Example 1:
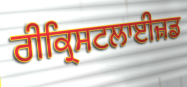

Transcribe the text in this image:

ਰੀਕ੍ਰਿਸਟਲਾਈਜ਼ਡ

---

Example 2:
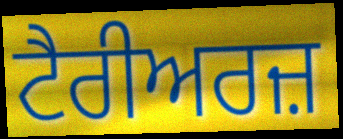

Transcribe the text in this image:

ਟੈਰੀਅਰਜ਼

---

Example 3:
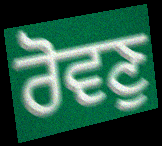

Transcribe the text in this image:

ਰੋਵਣੁ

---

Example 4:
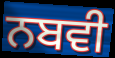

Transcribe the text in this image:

ਨਬਵੀ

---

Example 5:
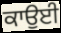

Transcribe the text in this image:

ਕਾਉਈ